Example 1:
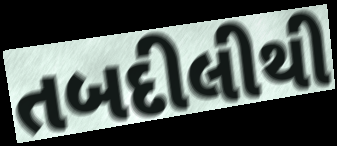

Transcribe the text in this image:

તબદીલીથી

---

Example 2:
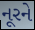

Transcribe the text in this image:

નૂરને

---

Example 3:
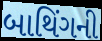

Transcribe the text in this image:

બાથિંગની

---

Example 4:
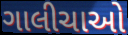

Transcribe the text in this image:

ગાલીચાઓ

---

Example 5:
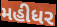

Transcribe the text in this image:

મહીધર